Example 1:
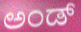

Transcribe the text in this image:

ಅಂಡ್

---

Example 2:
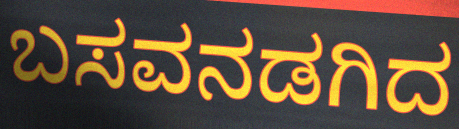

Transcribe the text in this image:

ಬಸವನಡಗಿದ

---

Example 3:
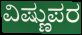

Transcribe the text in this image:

ವಿಷ್ಣುಪರ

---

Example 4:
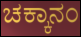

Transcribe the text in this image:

ಚಕ್ಕಾನಂ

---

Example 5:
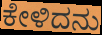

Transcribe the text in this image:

ಕೇಳಿದನು